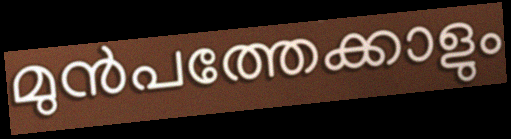
മുൻപത്തേക്കാളും